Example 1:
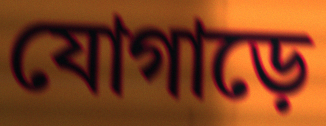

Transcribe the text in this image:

যোগাড়ে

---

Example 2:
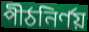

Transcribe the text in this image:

পীঠনির্ণয়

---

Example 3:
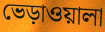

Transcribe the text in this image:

ভেড়াওয়ালা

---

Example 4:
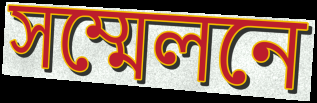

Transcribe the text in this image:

সম্মেলনে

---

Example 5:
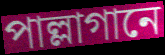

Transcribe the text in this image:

পাল্লাগানে